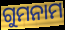
ଗୁମନାମ